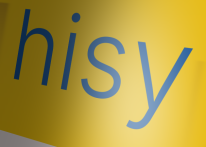
hisy